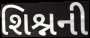
શિશ્નની